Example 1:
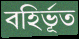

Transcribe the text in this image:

বহিৰ্ভূত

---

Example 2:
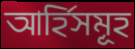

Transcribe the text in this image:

আৰ্হিসমূহ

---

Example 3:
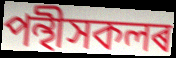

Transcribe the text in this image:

পন্থীসকলৰ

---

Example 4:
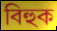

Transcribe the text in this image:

বিহুক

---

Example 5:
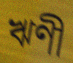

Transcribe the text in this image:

ঋণী